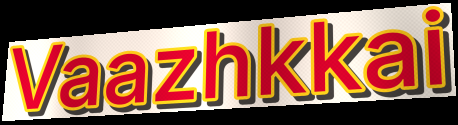
Vaazhkkai